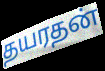
தயரதன்